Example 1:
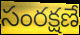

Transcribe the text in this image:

సంరక్షణే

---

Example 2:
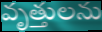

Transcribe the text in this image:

వృత్తులను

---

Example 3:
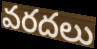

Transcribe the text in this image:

వరదలు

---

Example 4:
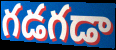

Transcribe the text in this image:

గడగడా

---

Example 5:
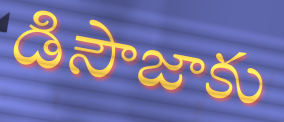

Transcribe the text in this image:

డిసౌజాకు